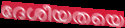
ദേശീയതയെ